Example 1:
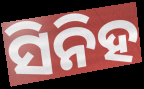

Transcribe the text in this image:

ସିନିହ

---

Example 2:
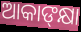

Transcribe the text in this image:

ଆକାଙ୍‍କ୍ଷା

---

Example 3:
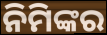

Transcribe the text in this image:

ନିମିଙ୍କର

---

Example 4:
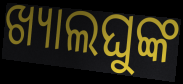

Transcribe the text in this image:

ଖ୍ୟାଲଘୁଙ୍କ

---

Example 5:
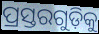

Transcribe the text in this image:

ପ୍ରସ୍ତରଗୁଡ଼ିକୁ